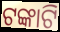
ଟଙ୍କାଟି